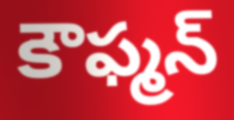
కౌఫ్మన్